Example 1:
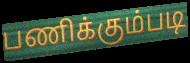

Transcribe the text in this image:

பணிக்கும்படி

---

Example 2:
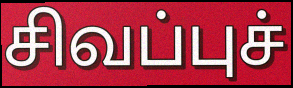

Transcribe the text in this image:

சிவப்புச்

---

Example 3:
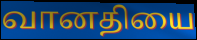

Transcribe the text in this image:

வானதியை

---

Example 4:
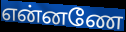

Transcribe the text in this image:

என்னணே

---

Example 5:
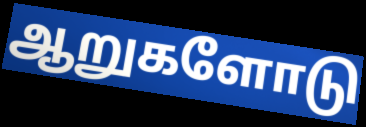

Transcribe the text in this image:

ஆறுகளோடு